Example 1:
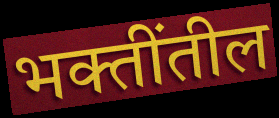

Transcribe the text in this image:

भक्तींतील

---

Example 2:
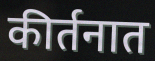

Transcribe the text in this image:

कीर्तनात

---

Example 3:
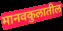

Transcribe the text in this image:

मानवकुलातील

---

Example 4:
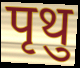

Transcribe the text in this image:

पृथु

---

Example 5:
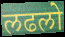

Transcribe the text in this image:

लढलो